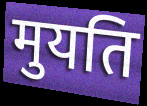
मुयति